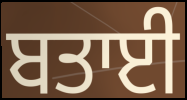
ਬਤਾਈ